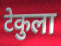
टेकुला